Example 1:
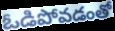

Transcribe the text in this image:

ఓడిపోవడంతో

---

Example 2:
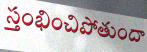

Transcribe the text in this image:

స్తంభించిపోతుందా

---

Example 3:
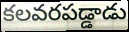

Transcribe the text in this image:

కలవరపడ్డాడు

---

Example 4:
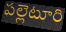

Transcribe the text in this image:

పల్లెటూరి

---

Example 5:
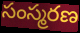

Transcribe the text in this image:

సంస్మరణ